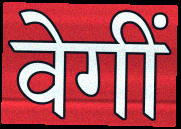
वेगीं